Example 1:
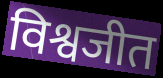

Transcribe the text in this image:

विश्वजीत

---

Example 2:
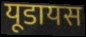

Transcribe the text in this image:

यूडायस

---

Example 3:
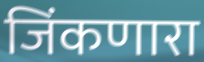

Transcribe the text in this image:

जिंकणारा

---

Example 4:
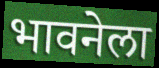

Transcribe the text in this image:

भावनेला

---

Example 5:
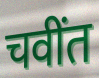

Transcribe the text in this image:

चवींत